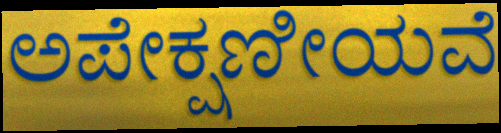
ಅಪೇಕ್ಷಣೀಯವೆ